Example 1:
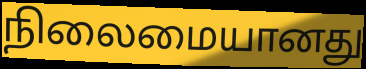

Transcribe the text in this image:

நிலைமையானது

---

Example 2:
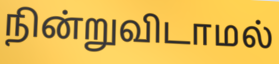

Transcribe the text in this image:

நின்றுவிடாமல்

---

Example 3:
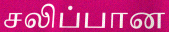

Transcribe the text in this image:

சலிப்பான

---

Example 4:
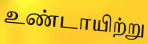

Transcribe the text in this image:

உண்டாயிற்று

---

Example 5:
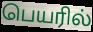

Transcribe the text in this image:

பெயரில்